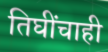
तिघींचाही